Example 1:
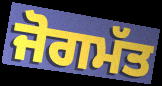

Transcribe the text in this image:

ਜੋਗਮੱਤ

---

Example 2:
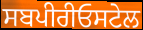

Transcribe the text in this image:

ਸਬਪੀਰੀਓਸਟੇਲ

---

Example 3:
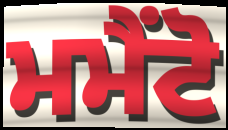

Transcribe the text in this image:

ਮਮੈਂਟੋ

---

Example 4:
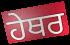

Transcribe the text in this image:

ਹੇਥਰ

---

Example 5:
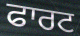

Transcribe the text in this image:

ਫਾਰਟ